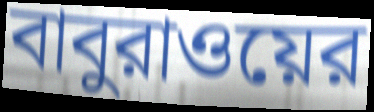
বাবুরাওয়ের